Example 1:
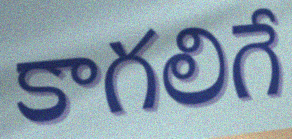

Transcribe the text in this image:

కాగలిగే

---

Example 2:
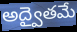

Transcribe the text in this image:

అద్వైతమే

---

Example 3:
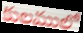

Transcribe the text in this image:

కులములో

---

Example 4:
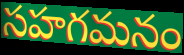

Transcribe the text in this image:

సహగమనం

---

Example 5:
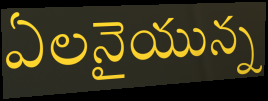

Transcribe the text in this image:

ఏలనైయున్న